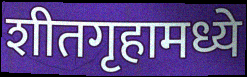
शीतगृहामध्ये